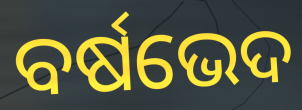
ବର୍ଷଭେଦ